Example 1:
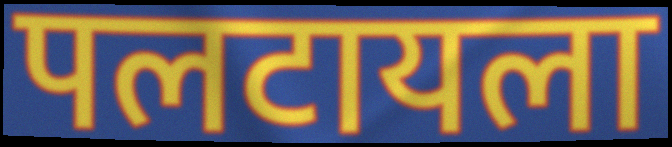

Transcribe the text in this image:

पलटायला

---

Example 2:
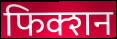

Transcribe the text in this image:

फिक्शन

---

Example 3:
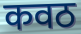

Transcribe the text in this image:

कवठ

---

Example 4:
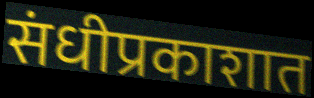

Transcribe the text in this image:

संधीप्रकाशात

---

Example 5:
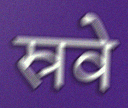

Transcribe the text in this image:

स्रवे